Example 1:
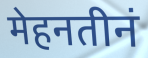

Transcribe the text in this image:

मेहनतीनं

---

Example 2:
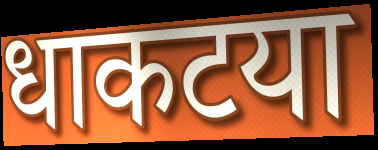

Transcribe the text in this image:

धाकटया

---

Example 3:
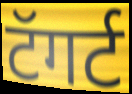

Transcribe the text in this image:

टॅगर्ट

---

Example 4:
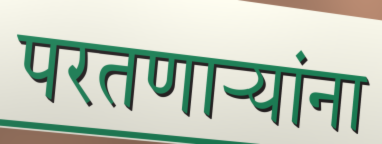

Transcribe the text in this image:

परतणाऱ्यांना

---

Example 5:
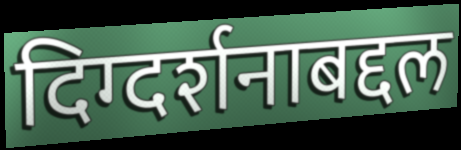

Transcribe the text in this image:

दिग्दर्शनाबद्दल